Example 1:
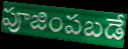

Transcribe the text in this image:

పూజింపబడే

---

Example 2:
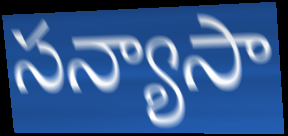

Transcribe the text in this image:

సన్యాసా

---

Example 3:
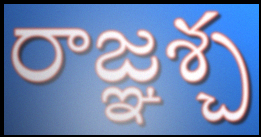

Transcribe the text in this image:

రాజ్ఞశ్చ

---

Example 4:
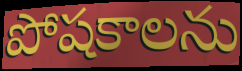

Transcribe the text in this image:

పోషకాలను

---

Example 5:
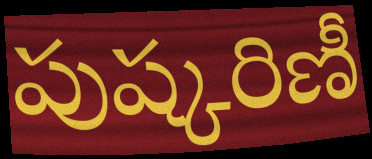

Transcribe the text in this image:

పుష్కరిణీ